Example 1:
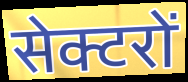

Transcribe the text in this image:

सेक्टरों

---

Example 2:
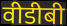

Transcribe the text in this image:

वीडीबी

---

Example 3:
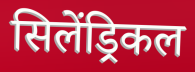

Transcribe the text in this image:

सिलेंड्रिकल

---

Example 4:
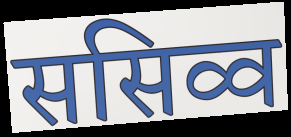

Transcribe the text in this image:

ससिव्व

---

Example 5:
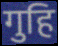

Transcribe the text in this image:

गुहि